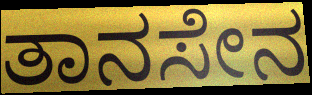
ತಾನಸೇನ